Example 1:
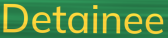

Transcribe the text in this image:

Detainee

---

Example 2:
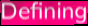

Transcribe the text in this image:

Defining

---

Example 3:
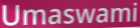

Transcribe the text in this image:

Umaswami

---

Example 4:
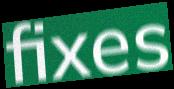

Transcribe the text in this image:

fixes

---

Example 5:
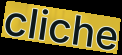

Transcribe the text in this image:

cliche